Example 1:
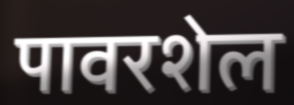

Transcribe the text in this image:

पावरशेल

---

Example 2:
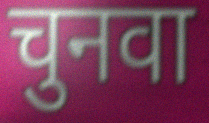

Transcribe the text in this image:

चुनवा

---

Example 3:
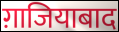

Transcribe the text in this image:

ग़ाजियाबाद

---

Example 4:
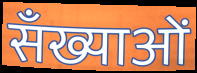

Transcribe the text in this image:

सँख्याओं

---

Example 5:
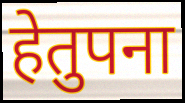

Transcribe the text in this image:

हेतुपना